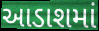
આડાશમાં